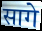
सागे